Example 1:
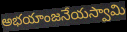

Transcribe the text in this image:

అభయాంజనేయస్వామి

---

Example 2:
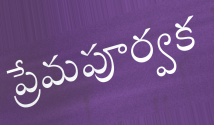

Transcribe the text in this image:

ప్రేమపూర్వక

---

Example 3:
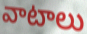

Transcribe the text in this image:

వాటాలు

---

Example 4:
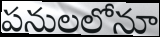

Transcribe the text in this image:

పనులలోనూ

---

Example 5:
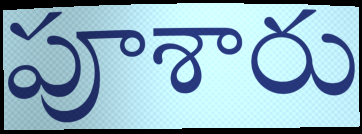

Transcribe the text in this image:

పూశారు